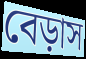
বেড়াস